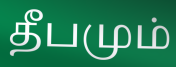
தீபமும்